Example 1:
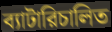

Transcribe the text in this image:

ব্যাটারিচালিত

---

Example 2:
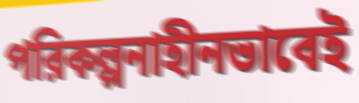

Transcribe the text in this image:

পরিকল্পনাহীনভাবেই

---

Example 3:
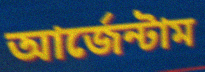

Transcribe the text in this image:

আর্জেন্টাম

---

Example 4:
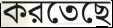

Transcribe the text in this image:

করতেছে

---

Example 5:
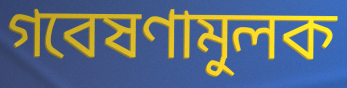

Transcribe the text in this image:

গবেষণামুলক